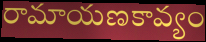
రామాయణకావ్యం